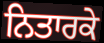
ਨਿਤਾਰਕੇ